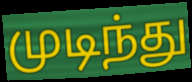
முடிந்து